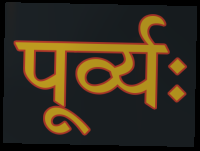
पूर्व्यः